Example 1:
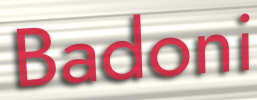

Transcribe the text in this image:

Badoni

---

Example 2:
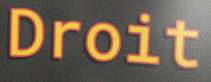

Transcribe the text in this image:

Droit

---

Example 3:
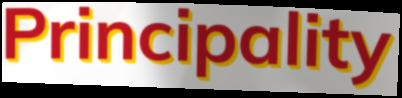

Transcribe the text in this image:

Principality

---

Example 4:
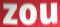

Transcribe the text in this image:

zou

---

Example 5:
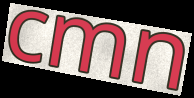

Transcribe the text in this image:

cmn